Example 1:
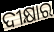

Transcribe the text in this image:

ଦୀକ୍ଷାର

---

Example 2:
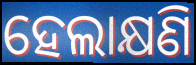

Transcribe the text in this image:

ହେଲାକ୍ଷଣି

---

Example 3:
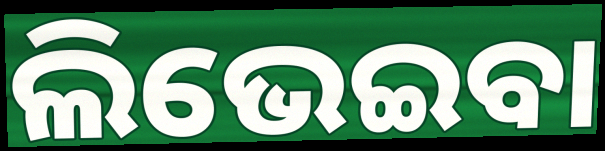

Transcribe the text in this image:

ଲିଭେଇବା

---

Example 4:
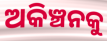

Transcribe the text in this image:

ଅକିଞ୍ଚନକୁ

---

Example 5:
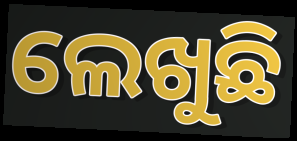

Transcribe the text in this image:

ଲେଖୁଛି